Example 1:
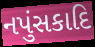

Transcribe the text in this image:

નપુંસકાદિ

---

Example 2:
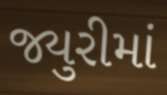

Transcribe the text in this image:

જ્યુરીમાં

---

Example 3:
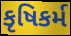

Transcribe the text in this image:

કૃષિકર્મ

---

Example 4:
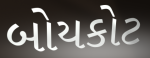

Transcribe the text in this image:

બોયકોટ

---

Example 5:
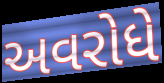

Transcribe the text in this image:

અવરોધે